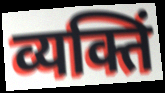
व्यक्तिं